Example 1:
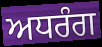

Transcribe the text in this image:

ਅਧਰੰਗ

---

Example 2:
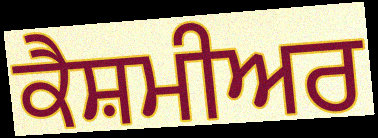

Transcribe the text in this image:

ਕੈਸ਼ਮੀਅਰ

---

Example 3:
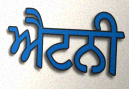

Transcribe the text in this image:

ਐਟਨੀ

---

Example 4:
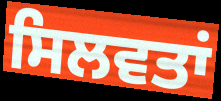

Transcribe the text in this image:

ਸਿਲਵਤਾਂ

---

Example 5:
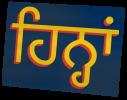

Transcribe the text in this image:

ਹਿਨ੍ਹਾਂ